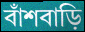
বাঁশবাড়ি